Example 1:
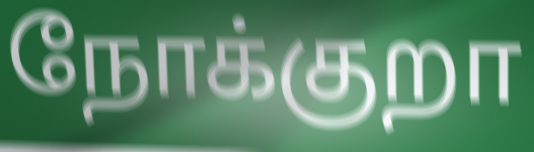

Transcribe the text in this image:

நோக்குறா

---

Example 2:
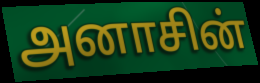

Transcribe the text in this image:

அனாசின்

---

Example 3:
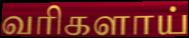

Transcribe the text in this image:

வரிகளாய்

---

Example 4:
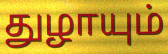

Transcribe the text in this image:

துழாயும்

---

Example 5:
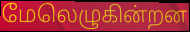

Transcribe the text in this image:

மேலெழுகின்றன